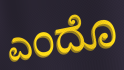
ಎಂದೊ